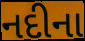
નદીના